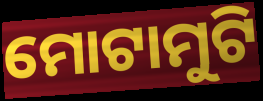
ମୋଟାମୁଟି